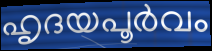
ഹൃദയപൂർവം